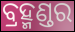
ବ୍ରହ୍ମଣ୍ଡର